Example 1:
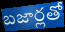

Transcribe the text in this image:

బజార్లతో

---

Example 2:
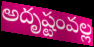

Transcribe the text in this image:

అదృష్టంవల్ల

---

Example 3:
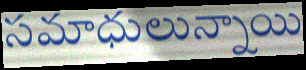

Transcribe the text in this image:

సమాధులున్నాయి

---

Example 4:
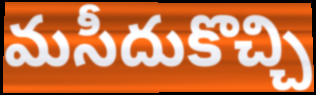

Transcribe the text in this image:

మసీదుకొచ్చి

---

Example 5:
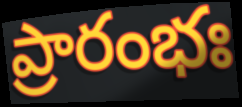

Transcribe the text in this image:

ప్రారంభః